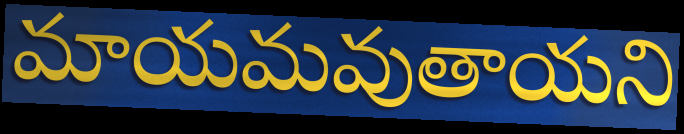
మాయమవుతాయని